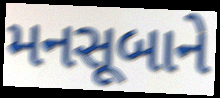
મનસૂબાને